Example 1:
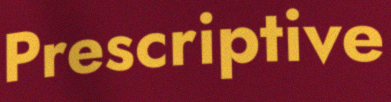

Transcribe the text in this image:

Prescriptive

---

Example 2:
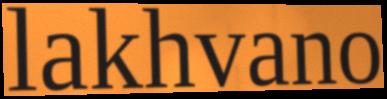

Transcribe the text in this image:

lakhvano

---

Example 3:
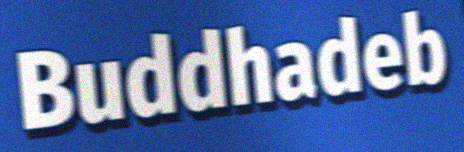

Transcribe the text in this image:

Buddhadeb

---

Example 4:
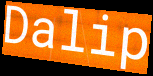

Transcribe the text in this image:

Dalip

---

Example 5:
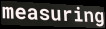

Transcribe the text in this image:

measuring